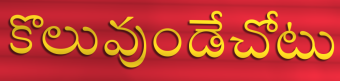
కొలువుండేచోటు